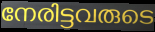
നേരിട്ടവരുടെ